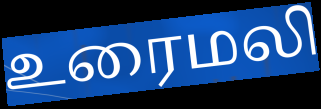
உரைமலி